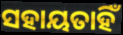
ସହାୟତାହିଁ